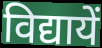
विद्यायें